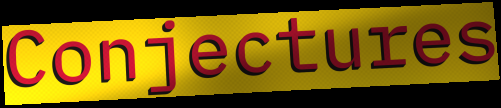
Conjectures